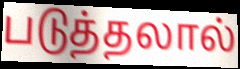
படுத்தலால்